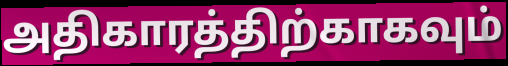
அதிகாரத்திற்காகவும்